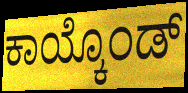
ಕಾಯ್ಕೊಂಡ್